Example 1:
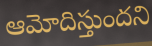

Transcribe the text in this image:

ఆమోదిస్తుందని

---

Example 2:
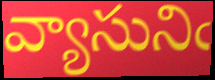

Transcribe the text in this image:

వ్యాసునిఁ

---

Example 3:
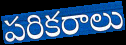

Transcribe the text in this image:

పరికరాలు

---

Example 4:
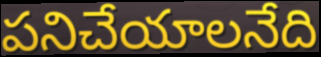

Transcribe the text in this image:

పనిచేయాలనేది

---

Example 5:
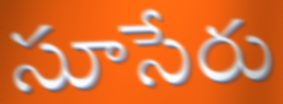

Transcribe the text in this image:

సూసేరు